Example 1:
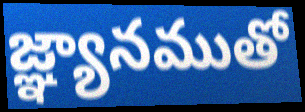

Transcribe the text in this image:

జ్ఞ్యానముతో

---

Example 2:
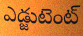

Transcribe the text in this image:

ఎడ్జుటెంట్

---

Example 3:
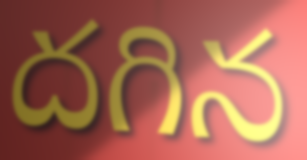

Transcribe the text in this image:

దగిన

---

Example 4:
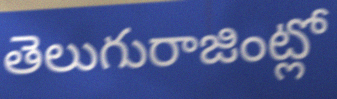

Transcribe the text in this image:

తెలుగురాజింట్లో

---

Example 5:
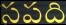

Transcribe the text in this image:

సపది